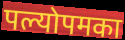
पल्योपमका